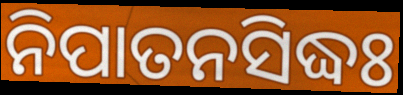
ନିପାତନସିଦ୍ଧଃ